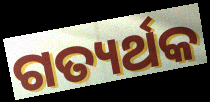
ଗତ୍ୟର୍ଥକ